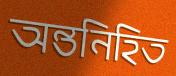
অন্তনিহিত